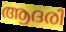
ആദരി